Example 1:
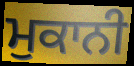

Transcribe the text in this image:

ਮੁਕਾਨੀ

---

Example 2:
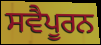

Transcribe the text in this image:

ਸਵੈਪੂਰਨ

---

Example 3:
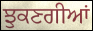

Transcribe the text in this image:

ਝੁਕਣਗੀਆਂ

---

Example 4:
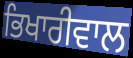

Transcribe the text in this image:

ਭਿਖਾਰੀਵਾਲ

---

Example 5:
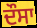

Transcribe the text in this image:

ਦੌਸਾ